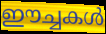
ഈച്ചകൾ